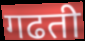
गढती